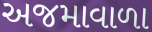
અજમાવાળા